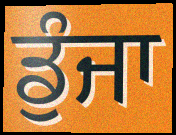
ਡੁੰਜਾ